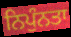
ਨਿਪੁੰਨਤਾ